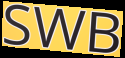
SWB